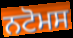
ਨਟੋਮਸ